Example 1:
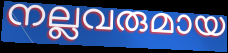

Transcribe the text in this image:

നല്ലവരുമായ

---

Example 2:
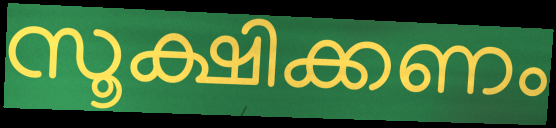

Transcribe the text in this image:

സൂക്ഷിക്കണം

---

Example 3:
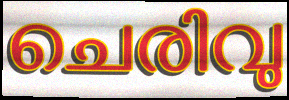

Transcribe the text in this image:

ചെരിവു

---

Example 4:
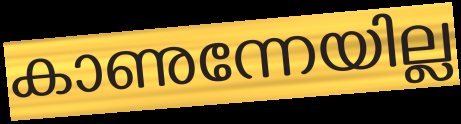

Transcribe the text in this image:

കാണുന്നേയില്ല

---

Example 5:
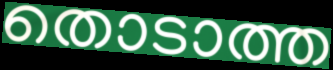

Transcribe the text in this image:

തൊടാത്ത